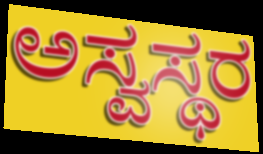
ಅಸ್ವಸ್ಥರ